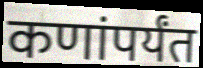
कणांपर्यंत